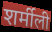
शर्मीली